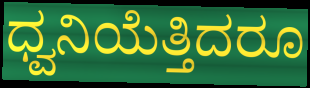
ಧ್ವನಿಯೆತ್ತಿದರೂ